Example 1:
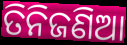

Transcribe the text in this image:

ତିନିଜଣିଆ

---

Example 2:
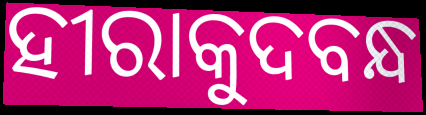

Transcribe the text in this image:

ହୀରାକୁଦବନ୍ଧ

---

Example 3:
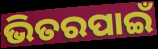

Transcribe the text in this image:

ଭିତରପାଇଁ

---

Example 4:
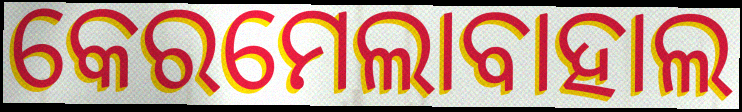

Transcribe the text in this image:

କେରମେଲାବାହାଲ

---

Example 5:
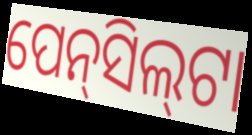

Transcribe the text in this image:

ପେନ୍‌ସିଲ୍‍ଟା